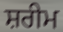
ਸ਼ਰੀਮ